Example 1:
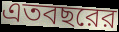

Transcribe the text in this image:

এতবছরের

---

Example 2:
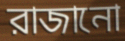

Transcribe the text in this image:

রাজানো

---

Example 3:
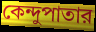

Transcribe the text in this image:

কেন্দুপাতার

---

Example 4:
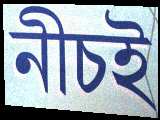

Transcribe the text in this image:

নীচই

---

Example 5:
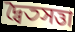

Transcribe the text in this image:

দ্বৈতসত্তা